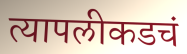
त्यापलीकडचं